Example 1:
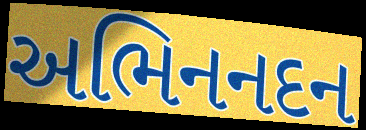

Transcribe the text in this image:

અભિનનદન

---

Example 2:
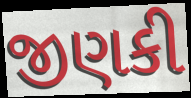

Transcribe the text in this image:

જીણકી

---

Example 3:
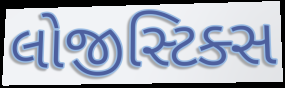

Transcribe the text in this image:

લોજીસ્ટિક્સ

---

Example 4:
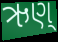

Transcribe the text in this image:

ઋણ્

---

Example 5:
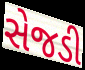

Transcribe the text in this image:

સેજડી